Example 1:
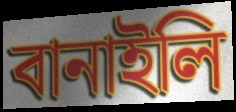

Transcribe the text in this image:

বানাইলি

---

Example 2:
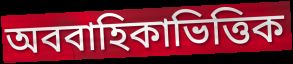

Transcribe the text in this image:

অববাহিকাভিত্তিক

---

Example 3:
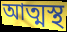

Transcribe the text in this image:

আত্মস্থ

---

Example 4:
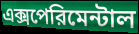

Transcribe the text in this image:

এক্সপেরিমেন্টাল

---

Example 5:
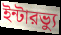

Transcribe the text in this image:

ইন্টারভ্যু